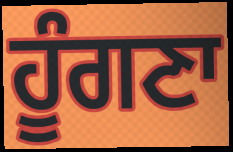
ਹੂੰਗਣਾ